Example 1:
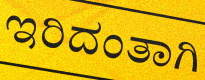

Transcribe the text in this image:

ಇರಿದಂತಾಗಿ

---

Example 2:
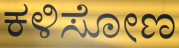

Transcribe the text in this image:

ಕಳಿಸೋಣ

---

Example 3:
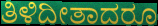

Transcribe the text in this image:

ತಿಳಿದೀತಾದರೂ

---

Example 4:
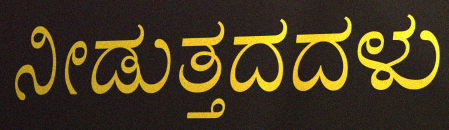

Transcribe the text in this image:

ನೀಡುತ್ತದದಳು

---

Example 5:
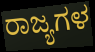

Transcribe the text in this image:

ರಾಜ್ಯಗಳ